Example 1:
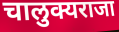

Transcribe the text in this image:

चालुक्यराजा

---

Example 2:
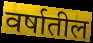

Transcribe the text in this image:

वर्षातील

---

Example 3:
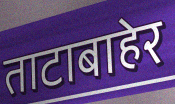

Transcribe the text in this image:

ताटाबाहेर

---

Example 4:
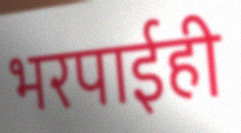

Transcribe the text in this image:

भरपाईही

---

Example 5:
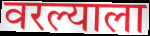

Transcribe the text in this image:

वरल्याला